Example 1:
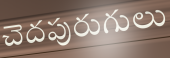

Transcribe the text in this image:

చెదపురుగులు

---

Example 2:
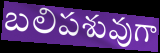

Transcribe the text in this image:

బలిపశువుగా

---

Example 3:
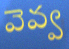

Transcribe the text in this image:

వెవ్వ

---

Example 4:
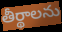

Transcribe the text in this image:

తీర్థాలను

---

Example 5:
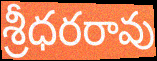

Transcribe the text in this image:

శ్రీధరరావు